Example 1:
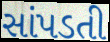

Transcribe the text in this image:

સાંપડતી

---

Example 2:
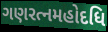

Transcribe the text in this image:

ગણરત્નમહોદધિ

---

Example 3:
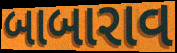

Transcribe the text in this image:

બાબારાવ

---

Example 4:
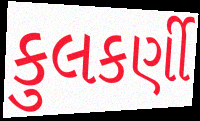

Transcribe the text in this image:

કુલકર્ણી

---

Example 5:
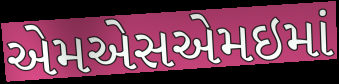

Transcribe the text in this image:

એમએસએમઇમાં